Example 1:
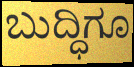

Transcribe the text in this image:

ಬುದ್ಧಿಗೂ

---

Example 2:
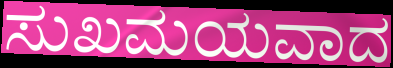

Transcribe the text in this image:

ಸುಖಮಯವಾದ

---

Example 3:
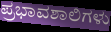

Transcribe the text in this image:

ಪ್ರಭಾವಶಾಲಿಗಳು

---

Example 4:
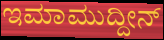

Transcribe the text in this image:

ಇಮಾಮುದ್ದೀನ್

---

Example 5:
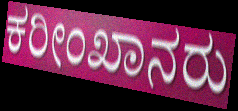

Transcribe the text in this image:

ಕರೀಂಖಾನರು